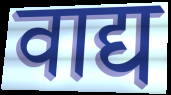
वाद्य